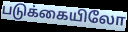
படுக்கையிலோ